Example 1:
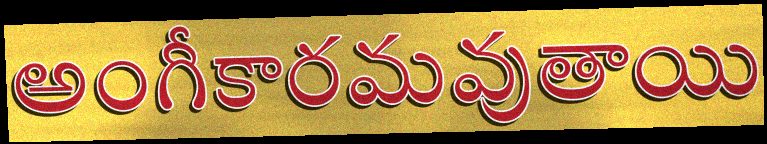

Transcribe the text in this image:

అంగీకారమవుతాయి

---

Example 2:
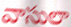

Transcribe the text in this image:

వాసులా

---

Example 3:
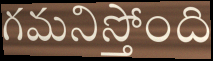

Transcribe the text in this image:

గమనిస్తోంది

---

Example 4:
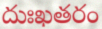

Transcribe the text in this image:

దుఃఖతరం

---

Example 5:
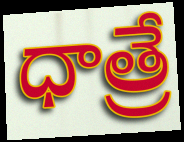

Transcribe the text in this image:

ధాత్రే